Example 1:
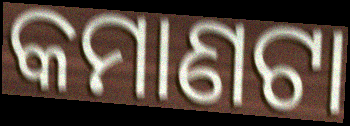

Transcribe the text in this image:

କମାଣଟା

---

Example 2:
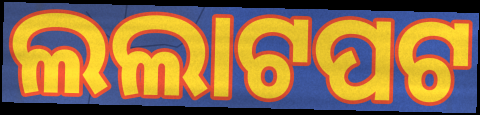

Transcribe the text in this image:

ଲଲାଟପଟ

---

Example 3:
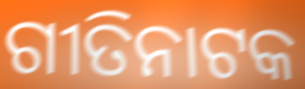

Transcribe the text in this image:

ଗୀତିନାଟକ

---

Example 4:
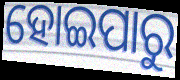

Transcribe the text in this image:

ହୋଇପାରୁ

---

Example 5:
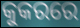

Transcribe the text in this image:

କୁକରରେ